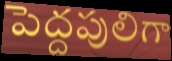
పెద్దపులిగా